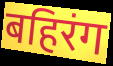
बहिरंग